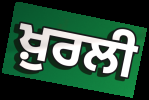
ਖ਼ੁਰਲੀ